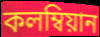
কলম্বিয়ান